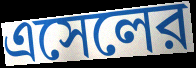
এসেলের